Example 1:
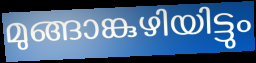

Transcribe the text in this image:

മുങ്ങാങ്കുഴിയിട്ടും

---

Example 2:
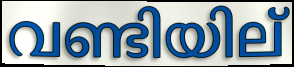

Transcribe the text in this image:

വണ്ടിയില്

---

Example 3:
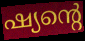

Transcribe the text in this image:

ഷ്യന്റെ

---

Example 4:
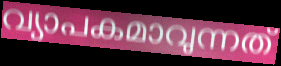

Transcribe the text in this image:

വ്യാപകമാവുന്നത്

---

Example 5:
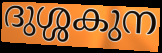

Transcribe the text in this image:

ദുശ്ശകുന